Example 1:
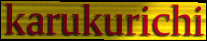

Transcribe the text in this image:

karukurichi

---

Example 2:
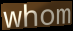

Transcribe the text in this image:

whom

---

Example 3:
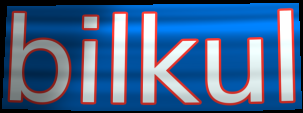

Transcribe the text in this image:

bilkul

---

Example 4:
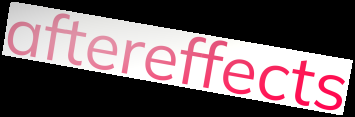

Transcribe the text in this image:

aftereffects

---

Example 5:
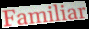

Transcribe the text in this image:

Familiar